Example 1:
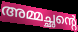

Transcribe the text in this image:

അമ്മച്ഛന്റെ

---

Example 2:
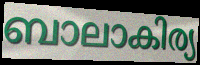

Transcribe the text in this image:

ബാലാകിര്യ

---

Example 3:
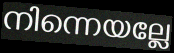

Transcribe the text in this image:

നിന്നെയല്ലേ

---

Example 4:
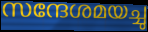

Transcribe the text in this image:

സന്ദേശമയച്ചു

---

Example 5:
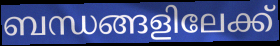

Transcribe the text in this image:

ബന്ധങ്ങളിലേക്ക്